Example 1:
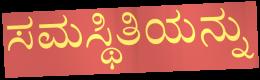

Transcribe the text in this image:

ಸಮಸ್ಥಿತಿಯನ್ನು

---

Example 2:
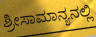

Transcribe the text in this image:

ಶ್ರೀಸಾಮಾನ್ಯನಲ್ಲಿ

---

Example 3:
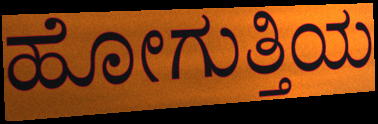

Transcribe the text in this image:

ಹೋಗುತ್ತಿಯ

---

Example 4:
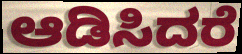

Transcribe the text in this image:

ಆಡಿಸಿದರೆ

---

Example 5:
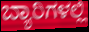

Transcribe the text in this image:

ಬ್ಯಾರಿಗಳಲ್ಲಿ